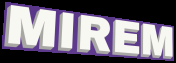
MIREM